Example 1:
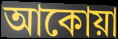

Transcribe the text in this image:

আকোয়া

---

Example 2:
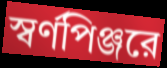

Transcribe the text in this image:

স্বর্ণপিঞ্জরে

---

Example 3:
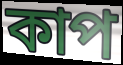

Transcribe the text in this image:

কাপ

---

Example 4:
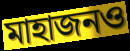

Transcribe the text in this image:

মাহাজনও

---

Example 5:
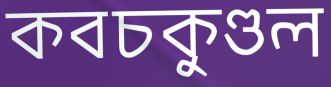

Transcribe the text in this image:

কবচকুণ্ডল